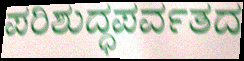
ಪರಿಶುದ್ಧಪರ್ವತದ